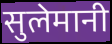
सुलेमानी